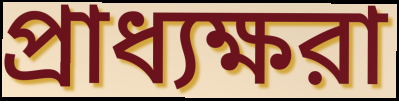
প্রাধ্যক্ষরা